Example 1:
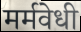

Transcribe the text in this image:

मर्मवेधी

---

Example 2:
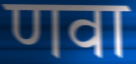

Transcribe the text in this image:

णवा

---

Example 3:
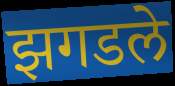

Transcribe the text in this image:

झगडले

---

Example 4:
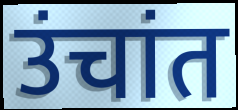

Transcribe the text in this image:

उंचांत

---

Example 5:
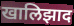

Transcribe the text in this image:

खालिझाद